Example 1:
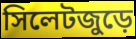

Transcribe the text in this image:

সিলেটজুড়ে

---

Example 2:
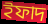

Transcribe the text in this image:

ইফাদ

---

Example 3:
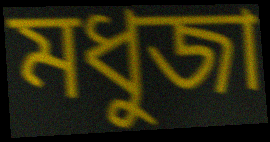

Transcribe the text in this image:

মধুজা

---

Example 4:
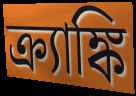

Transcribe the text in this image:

ক্র্যাঙ্কি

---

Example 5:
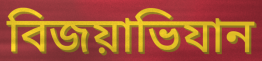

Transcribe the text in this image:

বিজয়াভিযান